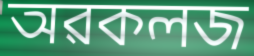
অৱকলজ